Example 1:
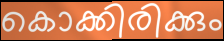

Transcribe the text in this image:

കൊക്കിരിക്കും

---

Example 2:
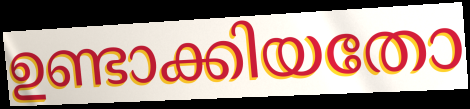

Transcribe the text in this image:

ഉണ്ടാക്കിയതോ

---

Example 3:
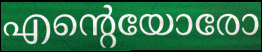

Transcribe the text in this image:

എന്റെയോരോ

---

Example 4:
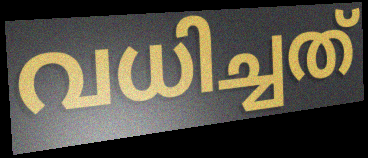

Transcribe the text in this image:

വധിച്ചത്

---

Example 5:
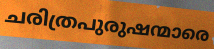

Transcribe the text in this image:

ചരിത്രപുരുഷന്മാരെ